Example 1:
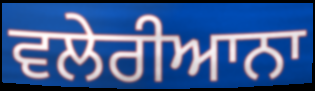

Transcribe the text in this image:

ਵਲੇਰੀਆਨਾ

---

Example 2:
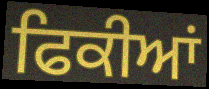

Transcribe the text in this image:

ਫਿਕੀਆਂ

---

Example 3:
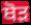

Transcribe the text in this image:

ਥੋੜ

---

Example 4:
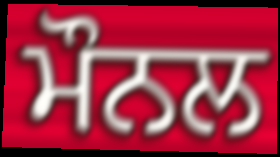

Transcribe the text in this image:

ਮੌਨਲ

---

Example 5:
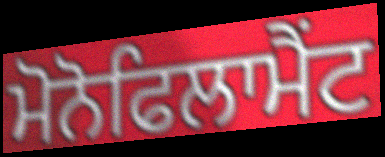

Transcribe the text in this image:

ਮੋਨੋਫਿਲਾਮੈਂਟ